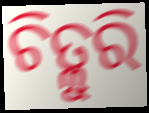
ଚିତ୍ଲୁରି